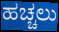
ಹಚ್ಚಲು